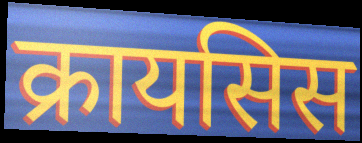
क्रायसिस